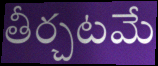
తీర్చటమే